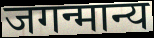
जगन्मान्य